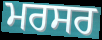
ਮਰਸਰ